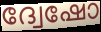
ദ്വേഷോ